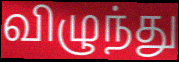
விழுந்து